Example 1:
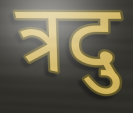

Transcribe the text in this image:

त्रदु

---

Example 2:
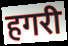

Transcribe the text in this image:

हगरी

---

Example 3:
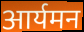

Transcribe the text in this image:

आर्यमन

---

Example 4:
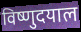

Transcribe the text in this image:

विष्णुदयाल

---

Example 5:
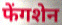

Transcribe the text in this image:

फेंगशेन